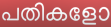
പതികളോ